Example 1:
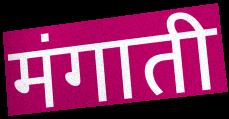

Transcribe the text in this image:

मंगाती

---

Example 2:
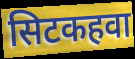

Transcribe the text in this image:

सिटकहवा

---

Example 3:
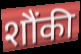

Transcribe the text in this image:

शौंकी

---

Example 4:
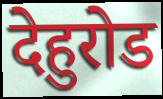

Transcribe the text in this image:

देहुरोड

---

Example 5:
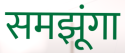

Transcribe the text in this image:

समझूंगा